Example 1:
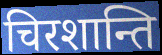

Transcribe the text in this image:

चिरशान्ति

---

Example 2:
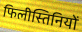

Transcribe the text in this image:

फिलीस्तिनियों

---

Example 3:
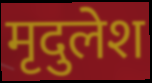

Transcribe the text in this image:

मृदुलेश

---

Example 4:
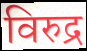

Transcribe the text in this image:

विरुद्र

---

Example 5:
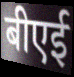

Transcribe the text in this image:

बीएई